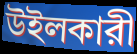
উইলকারী